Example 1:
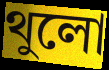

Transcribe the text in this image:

থুলো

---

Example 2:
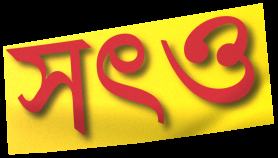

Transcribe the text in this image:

সৎও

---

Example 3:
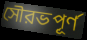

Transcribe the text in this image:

সৌরভপূর্ণ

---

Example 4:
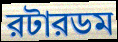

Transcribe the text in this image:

রটারডম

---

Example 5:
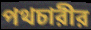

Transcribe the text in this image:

পথচারীর